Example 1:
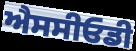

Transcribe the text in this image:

ਐਸਸੀਓਡੀ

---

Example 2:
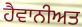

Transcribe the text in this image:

ਹੈਵਾਨੀਅਤ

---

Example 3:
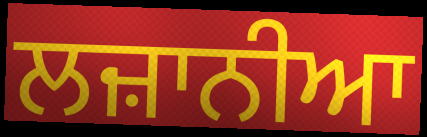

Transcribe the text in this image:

ਲਜ਼ਾਨੀਆ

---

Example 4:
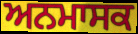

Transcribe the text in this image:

ਅਨਮਾਸਕ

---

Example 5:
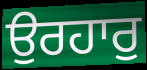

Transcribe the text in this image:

ਉਰਹਾਰੁ